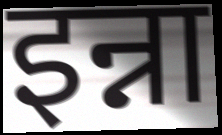
इन्ना